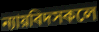
ন্যায়বিদসকলে